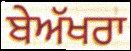
ਬੇਅੱਖਰਾ